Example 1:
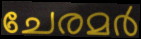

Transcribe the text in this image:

ചേരമർ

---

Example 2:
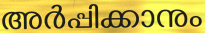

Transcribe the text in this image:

അർപ്പിക്കാനും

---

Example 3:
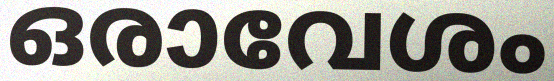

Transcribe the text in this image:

ഒരാവേശം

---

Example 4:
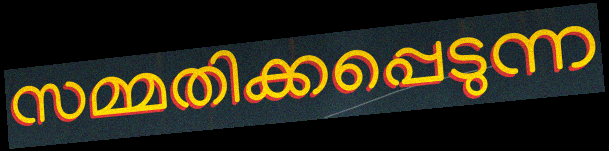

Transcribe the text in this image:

സമ്മതിക്കപ്പെടുന്ന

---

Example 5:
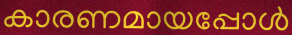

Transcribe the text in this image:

കാരണമായപ്പോൾ